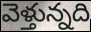
వెళ్తున్నది